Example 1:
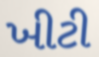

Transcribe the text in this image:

ખીટી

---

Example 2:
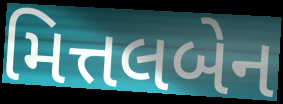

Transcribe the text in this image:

મિત્તલબેન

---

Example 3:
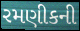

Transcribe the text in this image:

રમણીકની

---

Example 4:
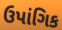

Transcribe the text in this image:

ઉપાંગિક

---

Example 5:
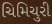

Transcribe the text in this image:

ચિમિચુરી